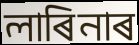
লাৰিনাৰ